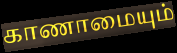
காணாமையும்